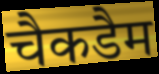
चैकडैम